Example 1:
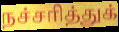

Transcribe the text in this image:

நச்சரித்துக்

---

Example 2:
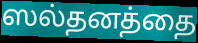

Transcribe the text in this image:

ஸல்தனத்தை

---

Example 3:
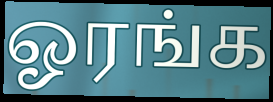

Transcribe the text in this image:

ஓரங்க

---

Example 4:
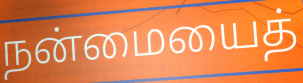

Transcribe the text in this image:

நன்மையைத்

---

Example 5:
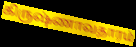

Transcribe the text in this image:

கிருஷ்ணாவதாரம்